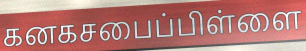
கனகசபைப்பிள்ளை